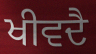
ਖੀਵਦੈ